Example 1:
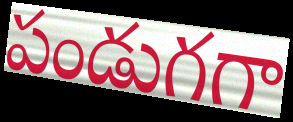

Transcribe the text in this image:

పండుగగా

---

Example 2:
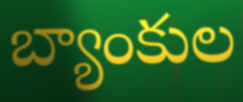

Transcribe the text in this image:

బ్యాంకుల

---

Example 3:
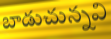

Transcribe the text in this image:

బాడుచున్నవి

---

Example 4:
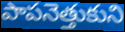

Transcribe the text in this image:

పాపనెత్తుకుని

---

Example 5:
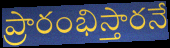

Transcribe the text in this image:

ప్రారంభిస్తారనే